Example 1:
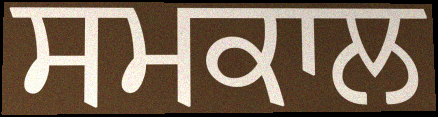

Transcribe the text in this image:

ਸਮਕਾਲ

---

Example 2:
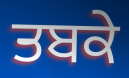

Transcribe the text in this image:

ਤਬਕੇ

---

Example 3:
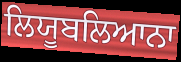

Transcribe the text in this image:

ਲਿਯੂਬਲਿਆਨਾ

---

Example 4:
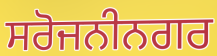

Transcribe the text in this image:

ਸਰੋਜਨੀਨਗਰ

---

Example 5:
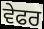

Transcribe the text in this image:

ਵੇਫਰ